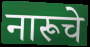
नारूचे